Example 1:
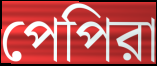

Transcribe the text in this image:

পেপিরা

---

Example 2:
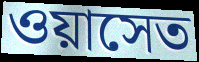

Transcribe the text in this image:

ওয়াসেত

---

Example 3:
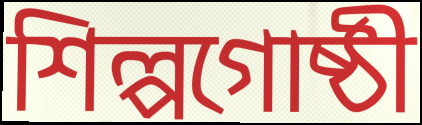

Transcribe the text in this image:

শিল্পগোষ্ঠী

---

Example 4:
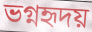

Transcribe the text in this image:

ভগ্নহৃদয়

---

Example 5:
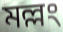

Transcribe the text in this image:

মল্লং